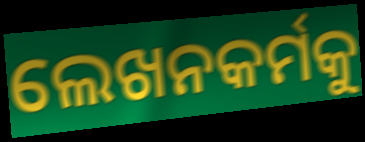
ଲେଖନକର୍ମକୁ